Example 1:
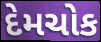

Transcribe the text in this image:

દેમચોક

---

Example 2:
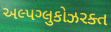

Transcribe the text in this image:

અલ્પગ્લુકોઝરક્ત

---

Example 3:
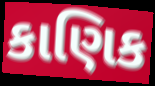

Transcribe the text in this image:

કાણિક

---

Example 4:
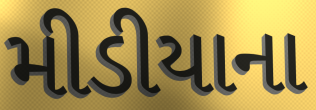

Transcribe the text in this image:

મીડીયાના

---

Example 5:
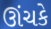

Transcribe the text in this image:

ઊંચકે